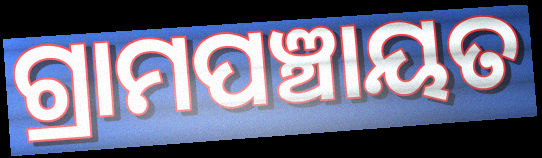
ଗ୍ରାମପଞ୍ଚାୟତ